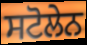
ਸਟੋਲੇਨ